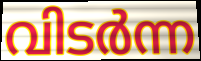
വിടർന്ന